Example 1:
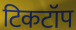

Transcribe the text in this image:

टिकटॉप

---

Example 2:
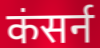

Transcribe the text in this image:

कंसर्न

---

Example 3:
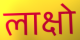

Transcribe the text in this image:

लाक्षो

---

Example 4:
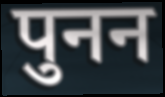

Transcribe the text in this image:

पुनन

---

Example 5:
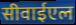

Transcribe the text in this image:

सीवाईएल